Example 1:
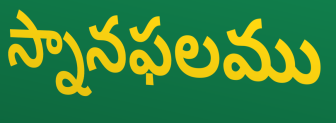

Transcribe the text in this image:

స్నానఫలము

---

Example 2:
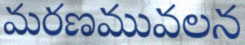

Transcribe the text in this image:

మరణమువలన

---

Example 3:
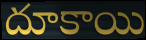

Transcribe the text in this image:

దూకాయి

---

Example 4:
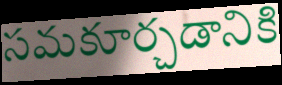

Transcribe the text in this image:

సమకూర్చడానికి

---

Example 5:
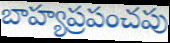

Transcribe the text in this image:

బాహ్యప్రపంచపు